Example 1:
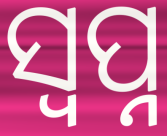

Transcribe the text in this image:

ସ୍ବପ୍ନ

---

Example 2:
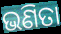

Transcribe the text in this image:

ଭଣିତା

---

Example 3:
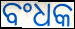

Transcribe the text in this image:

ବଂଧକ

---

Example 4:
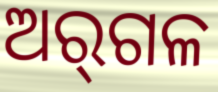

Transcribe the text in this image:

ଅର୍‌ଗଳ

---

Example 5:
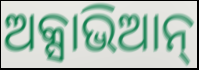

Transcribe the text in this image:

ଅକ୍ସାଭିଆନ୍